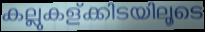
കല്ലുകള്ക്കിടയിലൂടെ